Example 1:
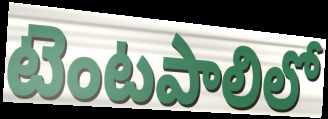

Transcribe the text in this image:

టెంటపాలిలో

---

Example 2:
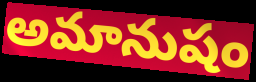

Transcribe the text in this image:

అమానుషం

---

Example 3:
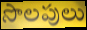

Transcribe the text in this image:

సొలపులు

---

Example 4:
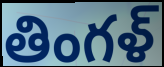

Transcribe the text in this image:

తింగళ్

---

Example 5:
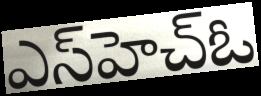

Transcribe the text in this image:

ఎస్‌హెచ్ఓ